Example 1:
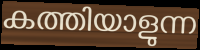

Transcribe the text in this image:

കത്തിയാളുന്ന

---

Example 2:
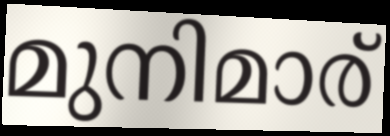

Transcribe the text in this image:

മുനിമാര്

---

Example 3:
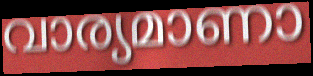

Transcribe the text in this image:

വാര്യമാണാ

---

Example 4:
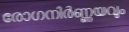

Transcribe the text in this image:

രോഗനിർണ്ണയവും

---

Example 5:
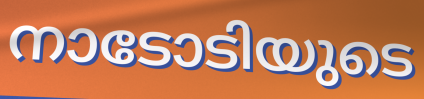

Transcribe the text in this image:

നാടോടിയുടെ